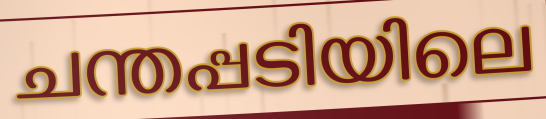
ചന്തപ്പടിയിലെ